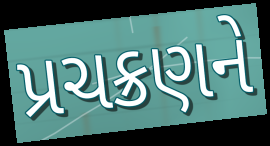
પ્રચક્રણને